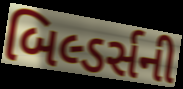
બિલ્ડર્સની